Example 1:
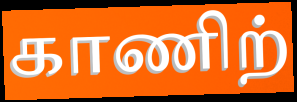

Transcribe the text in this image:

காணிற்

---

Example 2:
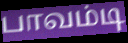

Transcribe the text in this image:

பாவம்டி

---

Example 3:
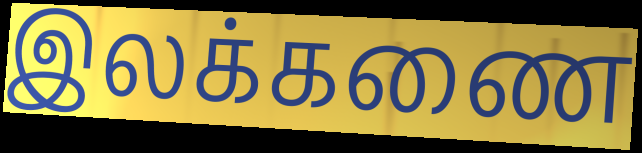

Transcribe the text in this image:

இலக்கணை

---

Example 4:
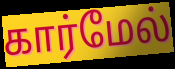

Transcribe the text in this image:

கார்மேல்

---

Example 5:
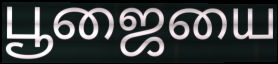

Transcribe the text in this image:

பூஜையை